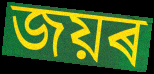
জয়ৰ